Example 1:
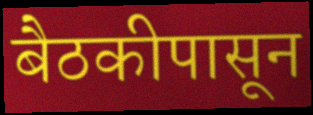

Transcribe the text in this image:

बैठकीपासून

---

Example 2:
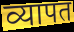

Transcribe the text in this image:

व्यापत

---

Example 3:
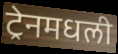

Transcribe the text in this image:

ट्रेनमधली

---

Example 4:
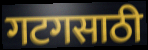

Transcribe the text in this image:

गटगसाठी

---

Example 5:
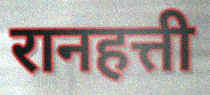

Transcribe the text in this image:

रानहत्ती